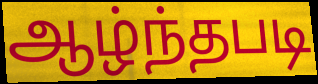
ஆழ்ந்தபடி